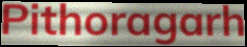
Pithoragarh